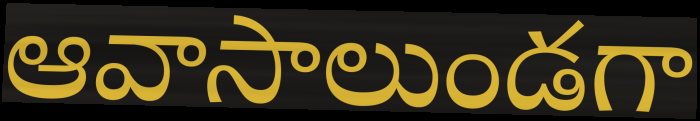
ఆవాసాలుండగా